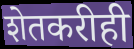
शेतकरीही